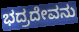
ಭದ್ರದೇವನು